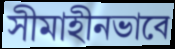
সীমাহীনভাবে